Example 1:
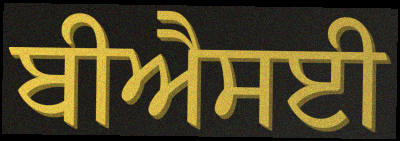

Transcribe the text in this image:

ਬੀਐਸਈ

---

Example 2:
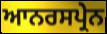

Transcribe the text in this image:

ਆਨਰਸਪ੍ਰੇਨ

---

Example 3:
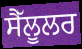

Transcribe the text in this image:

ਸੈੱਲੂਲਰ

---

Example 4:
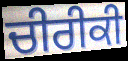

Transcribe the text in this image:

ਚੀਰੀਕੀ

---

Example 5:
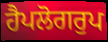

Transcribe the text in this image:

ਹੈਪਲੋਗਰੁਪ